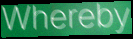
Whereby